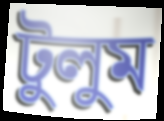
টুলুম